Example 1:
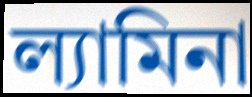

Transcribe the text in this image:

ল্যামিনা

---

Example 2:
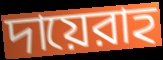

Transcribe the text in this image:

দায়েরাহ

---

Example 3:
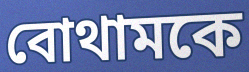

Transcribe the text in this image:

বোথামকে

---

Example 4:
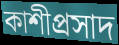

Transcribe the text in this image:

কাশীপ্রসাদ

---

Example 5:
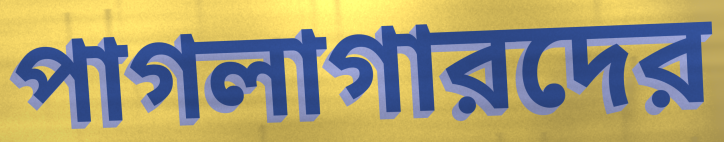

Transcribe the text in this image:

পাগলাগারদের